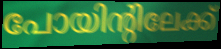
പോയിന്റിലേക്ക്